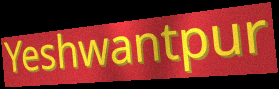
Yeshwantpur